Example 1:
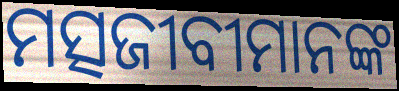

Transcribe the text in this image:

ମତ୍ସଜୀବୀମାନଙ୍କ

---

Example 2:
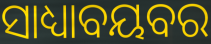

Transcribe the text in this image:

ସାଧ୍ୟାବୟବର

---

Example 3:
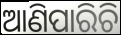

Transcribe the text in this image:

ଆଣିପାରିଚି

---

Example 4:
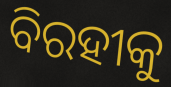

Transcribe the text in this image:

ବିରହୀକୁ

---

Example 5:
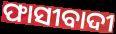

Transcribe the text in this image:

ଫାସୀବାଦୀ